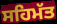
ਸਹਿਮੱਤ